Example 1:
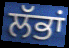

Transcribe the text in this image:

ਲੱਭਾਂ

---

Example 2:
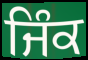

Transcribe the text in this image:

ਜਿੰਕ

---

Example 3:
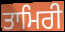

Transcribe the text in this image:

ਤਾਮਿਰੀ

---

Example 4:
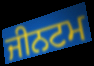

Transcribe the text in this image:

ਜੀਨਟਮ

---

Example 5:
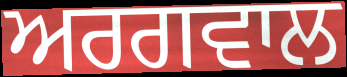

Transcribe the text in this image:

ਅਰਗਵਾਲ